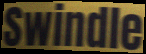
Swindle